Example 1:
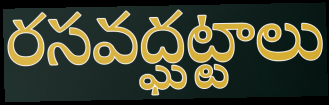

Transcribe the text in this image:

రసవద్ఘట్టాలు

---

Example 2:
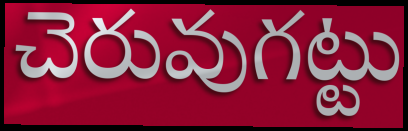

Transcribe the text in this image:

చెరువుగట్టు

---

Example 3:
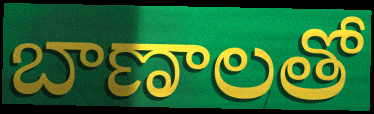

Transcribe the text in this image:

బాణాలతో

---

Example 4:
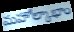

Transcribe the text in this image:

మహోల్కాభాం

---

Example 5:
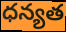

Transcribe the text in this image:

ధన్యత